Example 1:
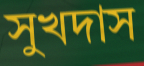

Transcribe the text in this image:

সুখদাস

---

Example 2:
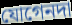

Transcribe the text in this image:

যোগেনদা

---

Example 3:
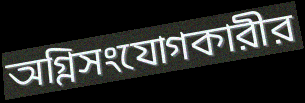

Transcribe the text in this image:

অগ্নিসংযোগকারীর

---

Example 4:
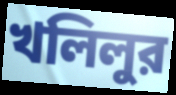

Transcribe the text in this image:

খলিলুর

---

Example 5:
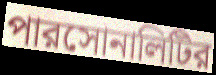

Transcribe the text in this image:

পারসোনালিটির